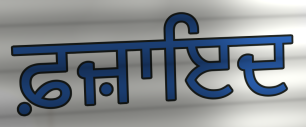
ਫ਼ਜ਼ਾਇਦ